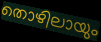
തൊഴിലായും